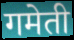
गमेती